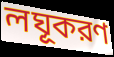
লঘূকরণ